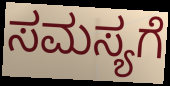
ಸಮಸ್ಯಗೆ